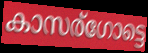
കാസര്ഗോട്ടെ